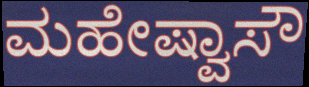
ಮಹೇಷ್ವಾಸೌ